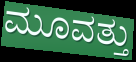
ಮೂವತ್ತು